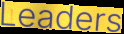
Leaders